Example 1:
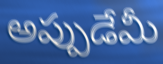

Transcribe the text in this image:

అప్పుడేమీ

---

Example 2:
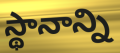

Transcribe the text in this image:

స్థానాన్ని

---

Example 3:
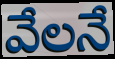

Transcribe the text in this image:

వేలనే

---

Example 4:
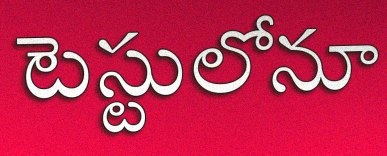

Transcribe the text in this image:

టెస్టులోనూ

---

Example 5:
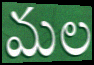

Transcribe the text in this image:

మల